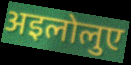
अइलोलुए